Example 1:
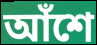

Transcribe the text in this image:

আঁশে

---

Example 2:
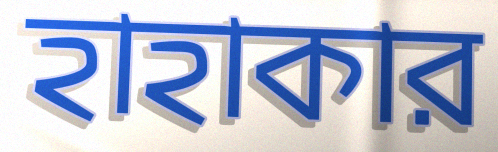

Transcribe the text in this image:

হাহাকার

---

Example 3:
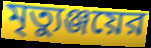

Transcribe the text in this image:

মৃত্যুঞ্জয়ের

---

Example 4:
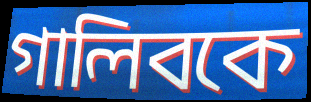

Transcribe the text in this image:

গালিবকে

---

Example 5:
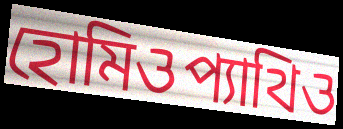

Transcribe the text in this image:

হোমিওপ্যাথিও